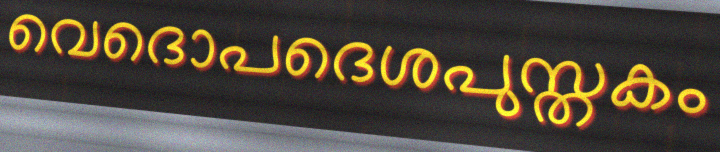
വെദൊപദെശപുസ്തകം